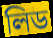
লিড